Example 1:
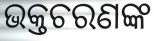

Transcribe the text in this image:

ଭକ୍ତଚରଣଙ୍କ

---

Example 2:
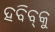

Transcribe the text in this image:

ହବିବ୍‌କୁ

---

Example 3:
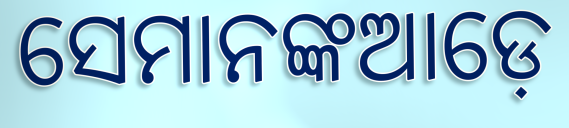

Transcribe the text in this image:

ସେମାନଙ୍କଆଡ଼େ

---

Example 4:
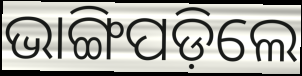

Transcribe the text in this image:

ଭାଙ୍ଗିପଡ଼ିଲେ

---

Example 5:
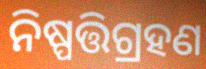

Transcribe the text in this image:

ନିଷ୍ପତ୍ତିଗ୍ରହଣ